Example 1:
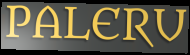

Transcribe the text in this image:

PALERU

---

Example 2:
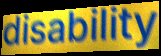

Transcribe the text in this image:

disability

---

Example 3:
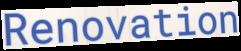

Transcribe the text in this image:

Renovation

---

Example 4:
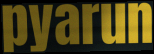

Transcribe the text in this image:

pyarun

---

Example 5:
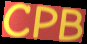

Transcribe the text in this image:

CPB